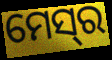
ମେସ୍‍ର